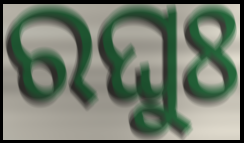
ରଘୁଃ